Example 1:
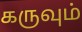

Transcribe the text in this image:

கருவும்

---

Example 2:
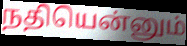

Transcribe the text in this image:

நதியென்னும்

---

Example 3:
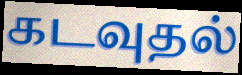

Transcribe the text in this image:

கடவுதல்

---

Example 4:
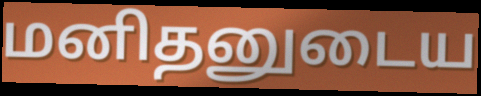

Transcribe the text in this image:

மனிதனுடைய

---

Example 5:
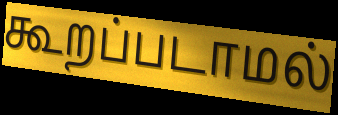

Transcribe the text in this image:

கூறப்படாமல்